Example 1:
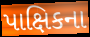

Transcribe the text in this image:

પાક્ષિકના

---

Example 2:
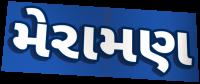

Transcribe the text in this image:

મેરામણ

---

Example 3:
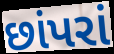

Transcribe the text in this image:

છાંપરાં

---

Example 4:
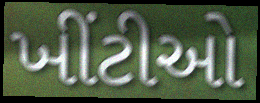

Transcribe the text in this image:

ખીંટીઓ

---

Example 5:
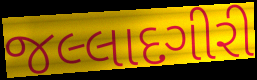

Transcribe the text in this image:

જલ્લાદગીરી